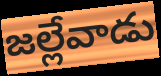
జల్లేవాడు